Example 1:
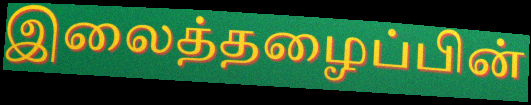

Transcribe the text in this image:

இலைத்தழைப்பின்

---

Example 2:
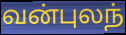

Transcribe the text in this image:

வன்புலந்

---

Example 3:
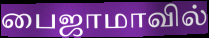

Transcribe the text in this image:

பைஜாமாவில்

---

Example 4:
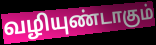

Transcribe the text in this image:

வழியுண்டாகும்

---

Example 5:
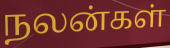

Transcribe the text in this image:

நலன்கள்